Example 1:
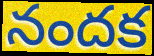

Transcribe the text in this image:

నందక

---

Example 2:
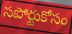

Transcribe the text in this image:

సపోర్టుకోసం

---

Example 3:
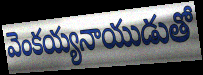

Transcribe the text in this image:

వెంకయ్యనాయుడుతో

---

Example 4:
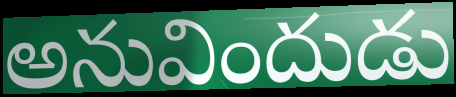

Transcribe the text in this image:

అనువిందుడు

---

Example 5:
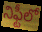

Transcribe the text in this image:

నిఫ్టీలో